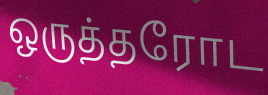
ஒருத்தரோட